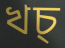
খচ্